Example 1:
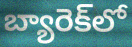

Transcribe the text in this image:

బ్యారెక్‌లో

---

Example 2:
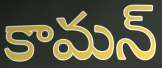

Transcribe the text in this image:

కామన్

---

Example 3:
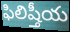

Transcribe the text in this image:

ఫిలిష్తీయ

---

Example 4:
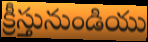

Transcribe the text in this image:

క్రీస్తునుండియు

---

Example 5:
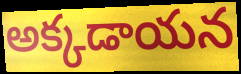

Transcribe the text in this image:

అక్కడాయన